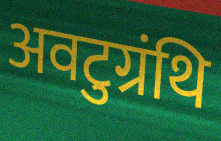
अवटुग्रंथि